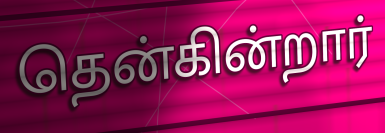
தென்கின்றார்